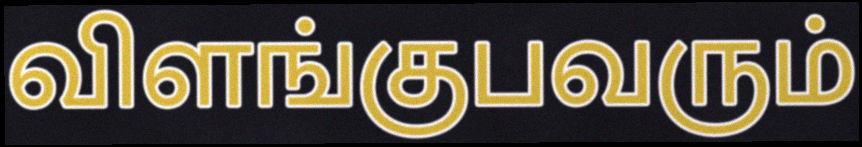
விளங்குபவரும்